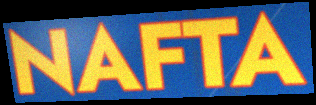
NAFTA